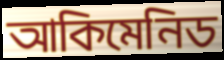
আকিমেনিড